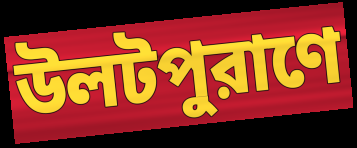
উলটপুরাণে